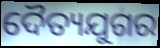
ଦୈତ୍ୟଯୁଗର